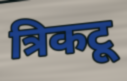
त्रिकटू